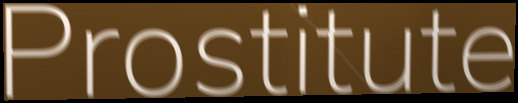
Prostitute